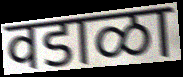
वडाळा